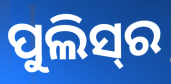
ପୁଲିସ୍‍ର